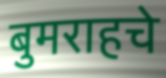
बुमराहचे